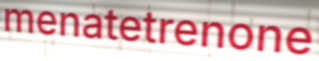
menatetrenone